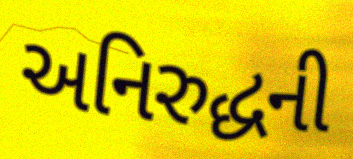
અનિરુદ્ધની